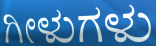
ಗೀಳುಗಳು